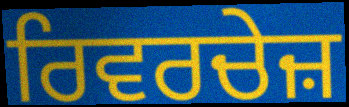
ਰਿਵਰਚੇਜ਼